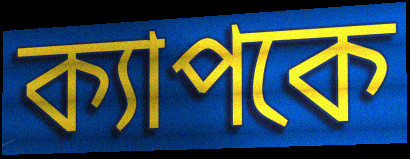
ক্যাপকে